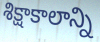
శిక్షాకాలాన్ని